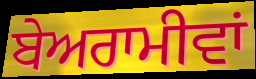
ਬੇਅਰਾਮੀਵਾਂ